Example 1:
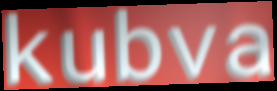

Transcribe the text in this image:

kubva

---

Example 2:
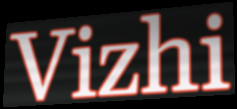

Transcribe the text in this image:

Vizhi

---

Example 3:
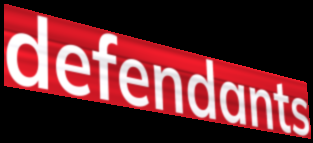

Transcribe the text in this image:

defendants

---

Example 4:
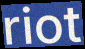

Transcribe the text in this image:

riot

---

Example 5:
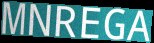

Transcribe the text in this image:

MNREGA